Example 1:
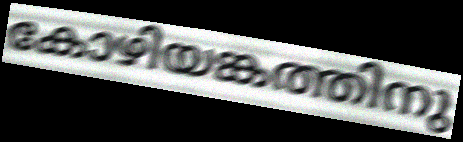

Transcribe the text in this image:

കോഴിയങ്കത്തിനു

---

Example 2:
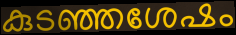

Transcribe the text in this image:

കുടഞ്ഞശേഷം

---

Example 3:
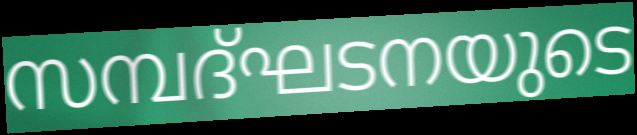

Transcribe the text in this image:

സമ്പദ്ഘടനയുടെ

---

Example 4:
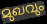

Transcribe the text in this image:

മുഖവും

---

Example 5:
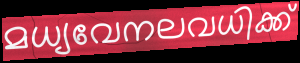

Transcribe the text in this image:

മധ്യവേനലവധിക്ക്